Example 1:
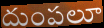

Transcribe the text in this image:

దుంపలూ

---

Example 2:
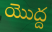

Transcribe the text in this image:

యొద్ద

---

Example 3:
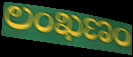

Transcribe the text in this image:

లంఖణం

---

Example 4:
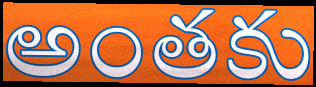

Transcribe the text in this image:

అంతకు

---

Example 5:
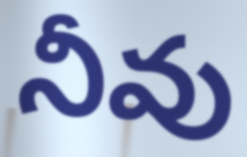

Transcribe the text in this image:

నీవు